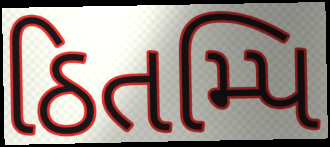
ઠિતમ્પિ